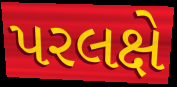
પરલક્ષે